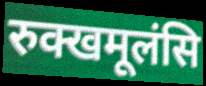
रुक्खमूलंसि